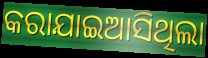
କରାଯାଇଆସିଥିଲା